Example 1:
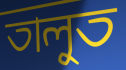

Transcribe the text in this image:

তালুত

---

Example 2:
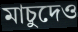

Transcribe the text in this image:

মাচুদেও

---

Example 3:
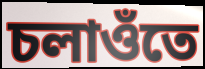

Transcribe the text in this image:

চলাওঁতে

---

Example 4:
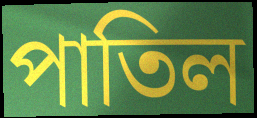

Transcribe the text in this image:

পাতিল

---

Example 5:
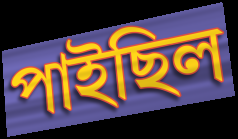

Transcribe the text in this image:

পাইছিল